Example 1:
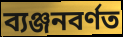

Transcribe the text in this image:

ব্যঞ্জনবৰ্ণত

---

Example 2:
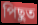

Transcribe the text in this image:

পিছুত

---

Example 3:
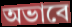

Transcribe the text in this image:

অভাবে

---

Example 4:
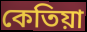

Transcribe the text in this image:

কেতিয়া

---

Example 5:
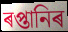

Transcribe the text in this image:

ৰপ্তানিৰ